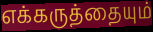
எக்கருத்தையும்